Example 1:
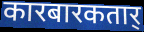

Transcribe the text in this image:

कारबारकतार्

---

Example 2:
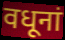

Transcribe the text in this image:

वधूनां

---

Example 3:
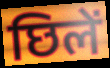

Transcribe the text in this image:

छिलें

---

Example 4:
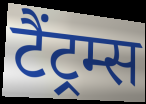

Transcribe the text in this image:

टैंट्रम्स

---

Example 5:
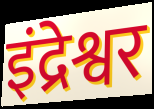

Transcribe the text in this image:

इंद्रेश्वर